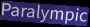
Paralympic